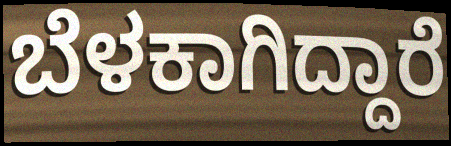
ಬೆಳಕಾಗಿದ್ದಾರೆ